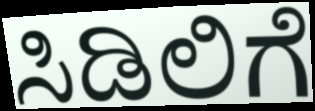
ಸಿಡಿಲಿಗೆ